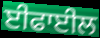
ਈਫਾਈਲ